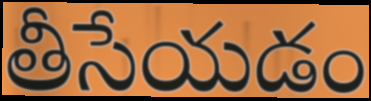
తీసేయడం